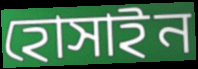
হোসাইন